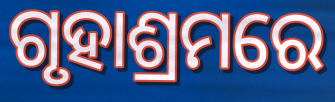
ଗୃହାଶ୍ରମରେ